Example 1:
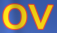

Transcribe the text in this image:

ov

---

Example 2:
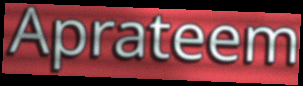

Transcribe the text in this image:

Aprateem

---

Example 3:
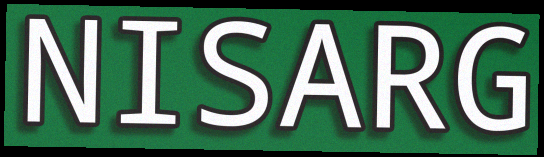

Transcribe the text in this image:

NISARG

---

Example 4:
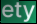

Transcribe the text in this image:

ety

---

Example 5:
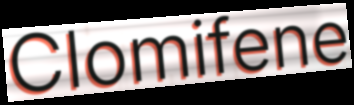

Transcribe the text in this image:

Clomifene